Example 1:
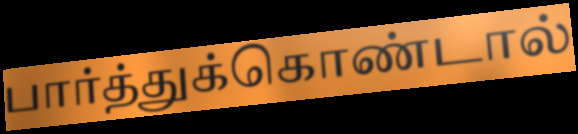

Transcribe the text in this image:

பார்த்துக்கொண்டால்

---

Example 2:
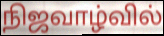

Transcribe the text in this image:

நிஜவாழ்வில்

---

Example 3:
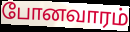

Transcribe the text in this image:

போனவாரம்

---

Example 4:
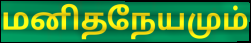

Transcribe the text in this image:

மனிதநேயமும்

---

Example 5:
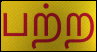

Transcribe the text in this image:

பற்ற